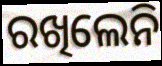
ରଖିଲେନି